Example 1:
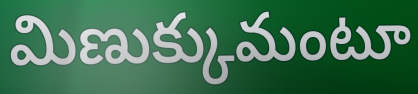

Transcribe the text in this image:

మిణుక్కుమంటూ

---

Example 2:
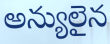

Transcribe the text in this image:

అన్యులైన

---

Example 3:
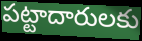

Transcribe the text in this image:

పట్టాదారులకు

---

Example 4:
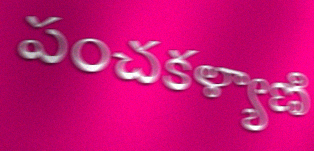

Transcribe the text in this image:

పంచకళ్యాణి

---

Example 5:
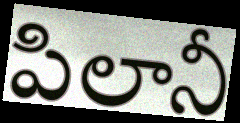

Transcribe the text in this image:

పిలానీ